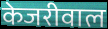
केजरीवाल